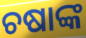
ଚଷାଙ୍କ